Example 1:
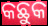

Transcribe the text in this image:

କଛୁକ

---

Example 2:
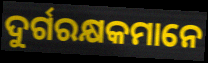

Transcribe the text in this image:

ଦୁର୍ଗରକ୍ଷକମାନେ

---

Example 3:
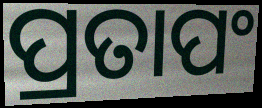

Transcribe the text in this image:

ପ୍ରତାପଂ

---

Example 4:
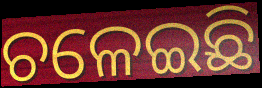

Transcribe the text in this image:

ଚଳେଇଛି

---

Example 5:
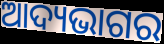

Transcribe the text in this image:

ଆଦ୍ୟଭାଗର